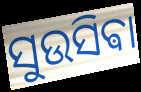
ସୁଉସିଵା